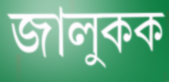
জালুকক